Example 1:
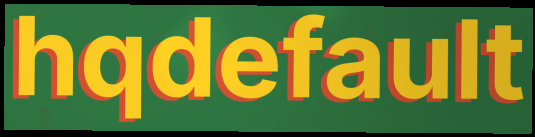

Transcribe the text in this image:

hqdefault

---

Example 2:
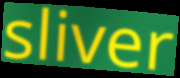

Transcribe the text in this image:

sliver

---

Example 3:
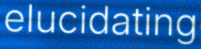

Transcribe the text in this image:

elucidating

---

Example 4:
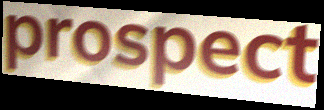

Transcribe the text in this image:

prospect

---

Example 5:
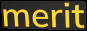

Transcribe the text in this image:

merit